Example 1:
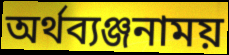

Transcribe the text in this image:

অর্থব্যঞ্জনাময়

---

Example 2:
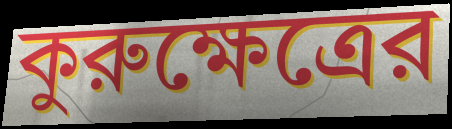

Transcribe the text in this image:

কুরুক্ষেত্রের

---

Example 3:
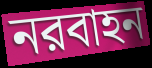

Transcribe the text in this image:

নরবাহন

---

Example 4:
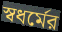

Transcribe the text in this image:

স্বধর্মের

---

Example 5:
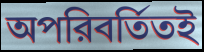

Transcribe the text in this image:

অপরিবর্তিতই